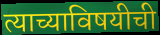
त्याच्याविषयीची